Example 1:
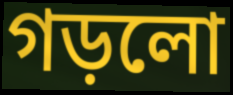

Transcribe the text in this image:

গড়লো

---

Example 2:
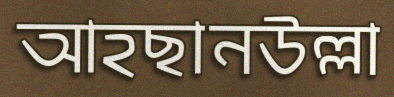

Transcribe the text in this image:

আহছানউল্লা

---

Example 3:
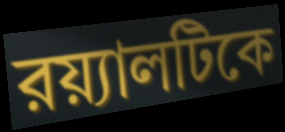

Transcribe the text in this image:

রয়্যালটিকে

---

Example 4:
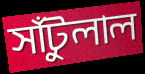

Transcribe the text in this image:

সাঁটুলাল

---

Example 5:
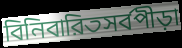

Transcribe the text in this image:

বিনিবারিতসর্বপীড়া